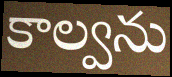
కాల్వను